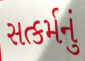
સત્કર્મનું